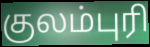
குலம்புரி